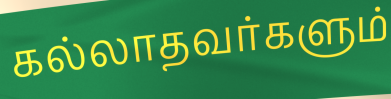
கல்லாதவர்களும்